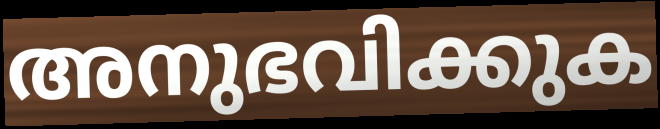
അനുഭവിക്കുക